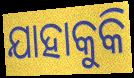
ଯାହାକୁକି